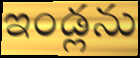
ఇండ్లను